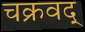
चक्रवद्